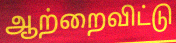
ஆற்றைவிட்டு